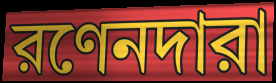
রণেনদারা